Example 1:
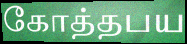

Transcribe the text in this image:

கோத்தபய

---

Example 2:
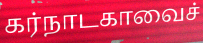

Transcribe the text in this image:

கர்நாடகாவைச்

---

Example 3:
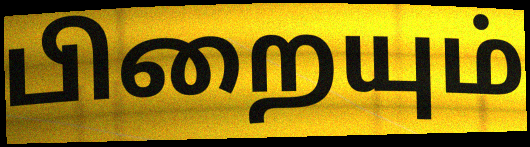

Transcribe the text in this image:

பிறையும்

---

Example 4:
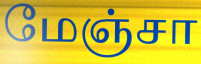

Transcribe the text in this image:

மேஞ்சா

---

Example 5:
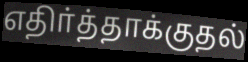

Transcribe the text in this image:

எதிர்த்தாக்குதல்